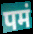
पमं